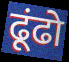
ढूंढो